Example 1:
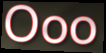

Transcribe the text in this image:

Ooo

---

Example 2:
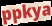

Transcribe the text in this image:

ppkya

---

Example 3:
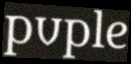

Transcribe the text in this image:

puple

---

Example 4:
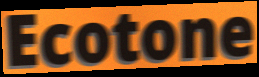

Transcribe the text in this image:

Ecotone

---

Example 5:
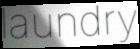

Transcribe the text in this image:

laundry